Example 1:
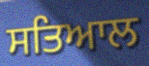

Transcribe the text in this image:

ਸਤਿਆਲ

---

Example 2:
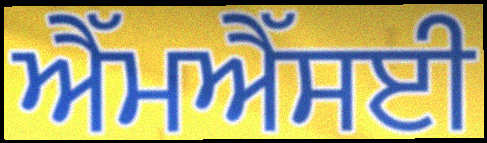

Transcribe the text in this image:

ਐੱਮਐੱਸਈ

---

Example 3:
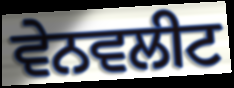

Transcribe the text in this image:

ਵੇਨਵਲੀਟ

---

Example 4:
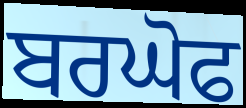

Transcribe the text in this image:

ਬਰਘੋਫ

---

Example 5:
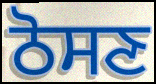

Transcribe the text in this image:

ਠੋਸਣ